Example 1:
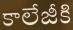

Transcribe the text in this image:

కాలేజీకి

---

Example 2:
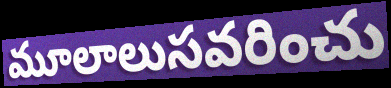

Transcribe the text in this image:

మూలాలుసవరించు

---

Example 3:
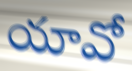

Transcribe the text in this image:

యావో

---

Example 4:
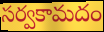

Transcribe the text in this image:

సర్వకామదం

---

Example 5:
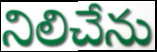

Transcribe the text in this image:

నిలిచేను